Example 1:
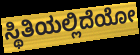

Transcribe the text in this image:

ಸ್ಥಿತಿಯಲ್ಲಿದೆಯೋ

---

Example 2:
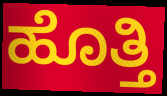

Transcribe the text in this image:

ಹೊತ್ತಿ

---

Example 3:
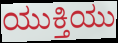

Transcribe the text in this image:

ಯುಕ್ತಿಯು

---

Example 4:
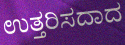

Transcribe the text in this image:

ಉತ್ತರಿಸದಾದ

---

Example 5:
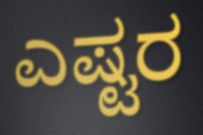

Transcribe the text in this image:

ಎಷ್ಟರ